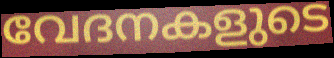
വേദനകളുടെ